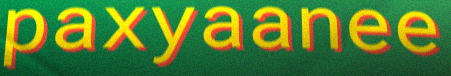
paxyaanee